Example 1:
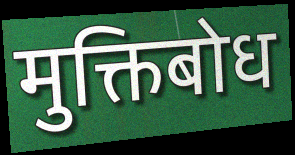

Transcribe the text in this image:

मुक्तिबोध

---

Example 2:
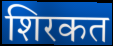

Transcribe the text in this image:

शिरकत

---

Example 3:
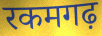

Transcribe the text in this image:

रकमगढ़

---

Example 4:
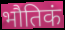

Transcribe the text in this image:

भौतिकं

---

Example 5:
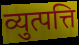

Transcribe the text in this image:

व्युत्पत्ति